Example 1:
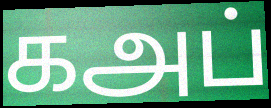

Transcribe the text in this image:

கஅப்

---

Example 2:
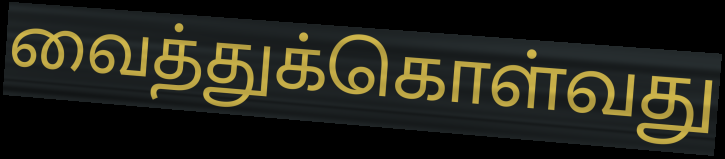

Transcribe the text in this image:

வைத்துக்கொள்வது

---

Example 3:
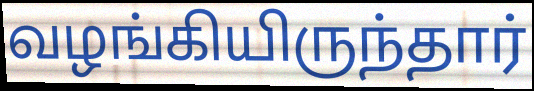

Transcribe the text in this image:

வழங்கியிருந்தார்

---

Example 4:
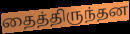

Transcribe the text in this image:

தைத்திருந்தன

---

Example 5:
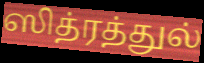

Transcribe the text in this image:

ஸித்ரத்துல்